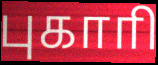
புகாரி